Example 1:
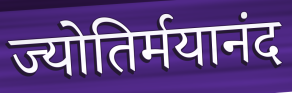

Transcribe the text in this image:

ज्योतिर्मयानंद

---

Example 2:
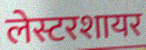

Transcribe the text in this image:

लेस्टरशायर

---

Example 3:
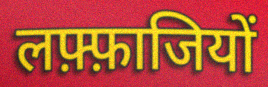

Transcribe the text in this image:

लफ़्फ़ाजियों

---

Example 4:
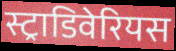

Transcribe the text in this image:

स्ट्राडिवेरियस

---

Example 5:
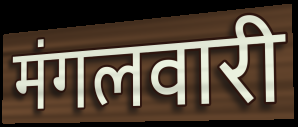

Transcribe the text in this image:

मंगलवारी